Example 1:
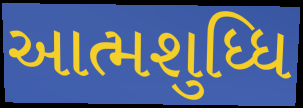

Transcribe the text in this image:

આત્મશુધ્ધિ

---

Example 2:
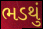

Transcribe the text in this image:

ભડથું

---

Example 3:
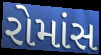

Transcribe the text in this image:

રોમાંસ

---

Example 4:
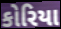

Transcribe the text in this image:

કોરિયા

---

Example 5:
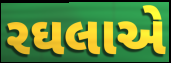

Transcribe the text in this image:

રઘલાએ